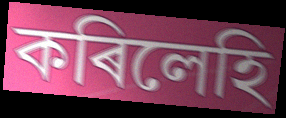
কৰিলেহি